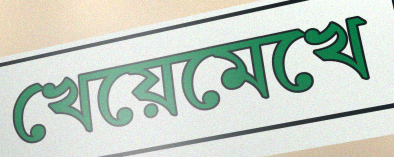
খেয়েমেখে